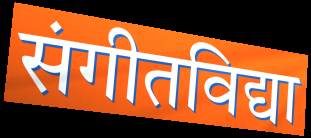
संगीतविद्या